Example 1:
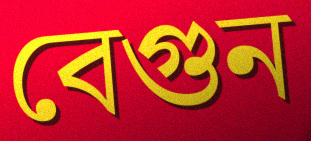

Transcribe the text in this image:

বেগুন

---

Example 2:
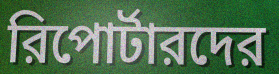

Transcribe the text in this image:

রিপোর্টারদের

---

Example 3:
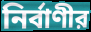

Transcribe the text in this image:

নির্বাণীর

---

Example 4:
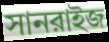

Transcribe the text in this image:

সানরাইজ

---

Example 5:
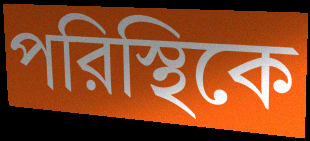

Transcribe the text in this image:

পরিস্থিকে